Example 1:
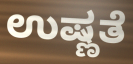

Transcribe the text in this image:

ಉಷ್ಣತೆ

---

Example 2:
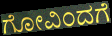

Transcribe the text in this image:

ಗೋವಿಂದಗೆ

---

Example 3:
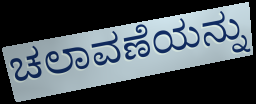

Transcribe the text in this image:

ಚಲಾವಣೆಯನ್ನು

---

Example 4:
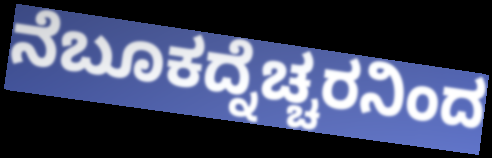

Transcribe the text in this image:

ನೆಬೂಕದ್ನೆಚ್ಚರನಿಂದ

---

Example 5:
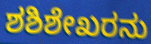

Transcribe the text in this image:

ಶಶಿಶೇಖರನು